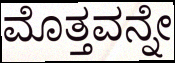
ಮೊತ್ತವನ್ನೇ